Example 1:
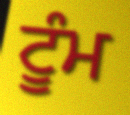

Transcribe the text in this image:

ਟੂੰਮ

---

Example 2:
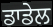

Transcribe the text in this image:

ਡਾਡੇਲ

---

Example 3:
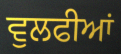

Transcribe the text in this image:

ਵੁਲਫੀਆਂ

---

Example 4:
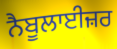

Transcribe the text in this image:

ਨੈਬੂਲਾਈਜ਼ਰ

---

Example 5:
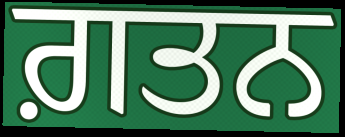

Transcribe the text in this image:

ਗ਼ਤਨ